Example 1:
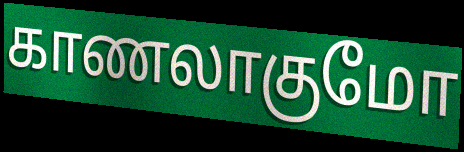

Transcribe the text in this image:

காணலாகுமோ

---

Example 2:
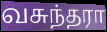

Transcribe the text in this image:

வசுந்தரா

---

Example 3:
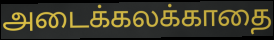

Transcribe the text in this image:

அடைக்கலக்காதை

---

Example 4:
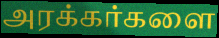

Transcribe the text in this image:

அரக்கர்களை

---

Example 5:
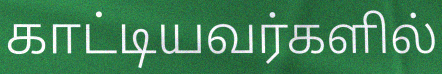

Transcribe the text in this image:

காட்டியவர்களில்